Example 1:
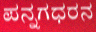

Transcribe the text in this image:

ಪನ್ನಗಧರನ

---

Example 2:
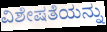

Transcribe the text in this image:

ವಿಶೇಷತೆಯನ್ನು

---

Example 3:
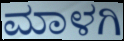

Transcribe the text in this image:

ಮಾಳಗಿ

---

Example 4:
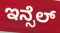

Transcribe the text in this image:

ಇನ್ಸೆಲ್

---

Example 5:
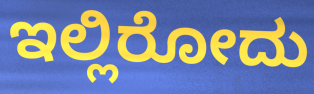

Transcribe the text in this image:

ಇಲ್ಲಿರೋದು